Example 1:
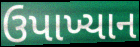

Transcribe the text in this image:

ઉપાખ્યાન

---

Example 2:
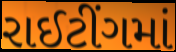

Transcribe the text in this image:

રાઈટીંગમાં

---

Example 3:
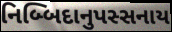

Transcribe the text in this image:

નિબ્બિદાનુપસ્સનાય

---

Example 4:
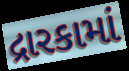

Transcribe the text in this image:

દ્રારકામાં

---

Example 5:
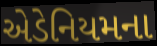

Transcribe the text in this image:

એડેનિયમના